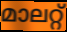
മാലറ്റ്